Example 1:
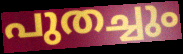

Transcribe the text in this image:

പുതച്ചും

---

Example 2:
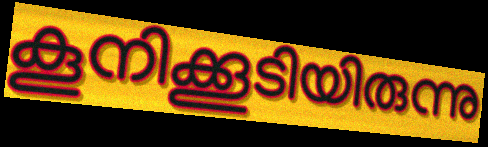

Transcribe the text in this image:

കൂനിക്കൂടിയിരുന്നു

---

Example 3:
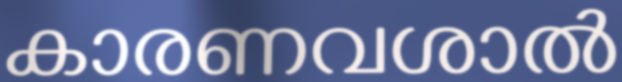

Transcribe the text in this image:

കാരണവശാൽ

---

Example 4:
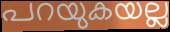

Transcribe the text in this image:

പറയുകയല്ല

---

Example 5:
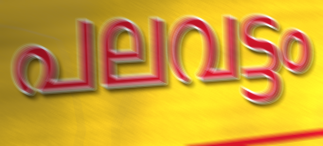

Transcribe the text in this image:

പലവട്ടം